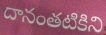
దానంతటికిని